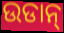
ଉଡାନ୍